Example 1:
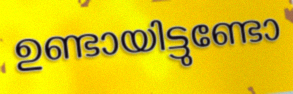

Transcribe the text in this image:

ഉണ്ടായിട്ടുണ്ടോ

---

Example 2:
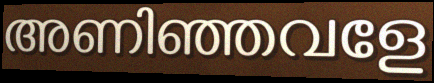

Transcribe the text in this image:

അണിഞ്ഞവളേ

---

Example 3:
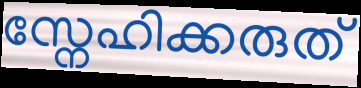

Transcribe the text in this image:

സ്നേഹിക്കരുത്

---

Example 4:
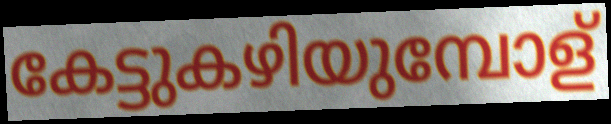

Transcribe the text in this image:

കേട്ടുകഴിയുമ്പോള്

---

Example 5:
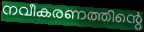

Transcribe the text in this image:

നവീകരണത്തിന്റെ